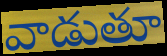
వాడుతూ